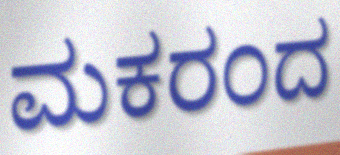
ಮಕರಂದ